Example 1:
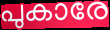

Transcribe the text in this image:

പുകാരേ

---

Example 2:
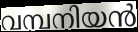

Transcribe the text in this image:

വമ്പനിയൻ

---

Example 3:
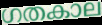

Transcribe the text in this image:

ഗതകാല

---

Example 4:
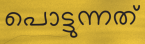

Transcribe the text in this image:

പൊട്ടുന്നത്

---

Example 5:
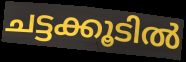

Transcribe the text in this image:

ചട്ടക്കൂടിൽ